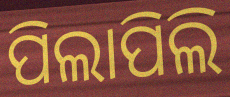
ପିଲାପିଲି